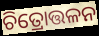
ଚିତ୍ରୋତ୍ତଳନ